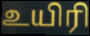
உயிரி